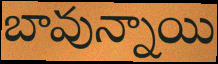
బావున్నాయి